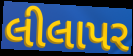
લીલાપર